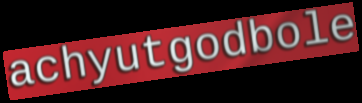
achyutgodbole